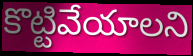
కొట్టివేయాలని